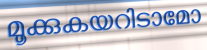
മൂക്കുകയറിടാമോ